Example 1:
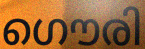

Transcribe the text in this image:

ഗൌരി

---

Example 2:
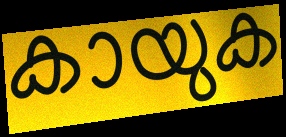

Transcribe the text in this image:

കായുക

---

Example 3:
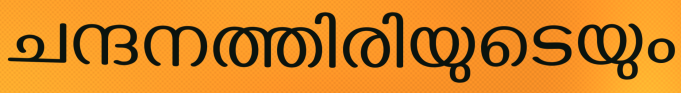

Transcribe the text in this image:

ചന്ദനത്തിരിയുടെയും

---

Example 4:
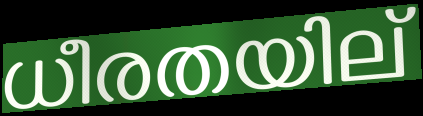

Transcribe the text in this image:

ധീരതയില്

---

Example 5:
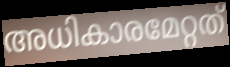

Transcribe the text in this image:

അധികാരമേറ്റത്